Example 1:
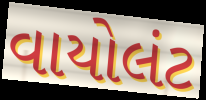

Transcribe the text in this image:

વાયોલંટ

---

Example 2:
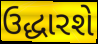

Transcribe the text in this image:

ઉદ્ધારશે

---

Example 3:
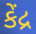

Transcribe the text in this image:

કેંદ્ર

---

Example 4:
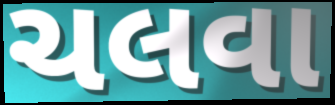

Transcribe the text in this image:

ચલવા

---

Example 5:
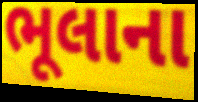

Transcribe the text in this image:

ભૂલાના